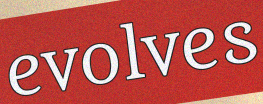
evolves